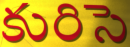
కురిసె